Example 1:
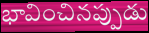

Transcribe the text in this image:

భావించినప్పుడు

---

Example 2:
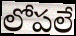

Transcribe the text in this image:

లోపలే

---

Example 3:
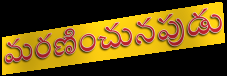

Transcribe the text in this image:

మరణించునపుడు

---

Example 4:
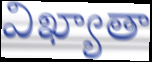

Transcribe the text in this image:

విఖ్యాతా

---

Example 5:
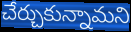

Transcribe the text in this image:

చేర్చుకున్నామని